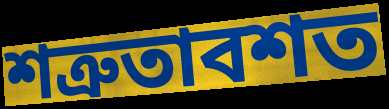
শত্রুতাবশত